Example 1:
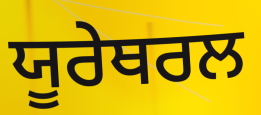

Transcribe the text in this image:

ਯੂਰੇਥਰਲ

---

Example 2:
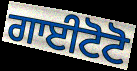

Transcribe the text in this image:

ਗਾਈਟੋਟੋ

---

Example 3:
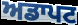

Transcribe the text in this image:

ਅਡਾਪਟ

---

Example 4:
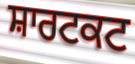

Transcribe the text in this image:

ਸ਼ਾਰਟਕਟ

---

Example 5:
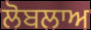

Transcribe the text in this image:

ਲੋਬਲਾਅ